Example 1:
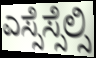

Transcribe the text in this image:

ಎಸ್ಸೆಸ್ಸೆಲ್ಸಿ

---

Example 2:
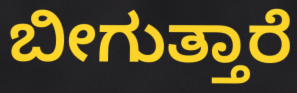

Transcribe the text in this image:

ಬೀಗುತ್ತಾರೆ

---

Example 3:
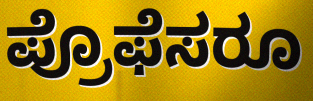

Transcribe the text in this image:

ಪ್ರೊಫೆಸರೂ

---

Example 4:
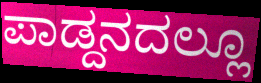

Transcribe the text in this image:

ಪಾಡ್ದನದಲ್ಲೂ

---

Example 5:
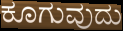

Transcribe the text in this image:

ಕೂಗುವುದು